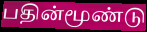
பதின்மூண்டு